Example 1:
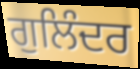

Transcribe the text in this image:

ਗੁਲਿੰਦਰ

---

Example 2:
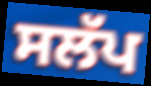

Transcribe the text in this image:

ਸਲੱਪ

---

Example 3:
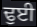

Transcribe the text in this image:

ਢੁਈ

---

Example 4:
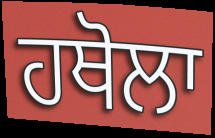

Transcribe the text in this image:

ਹਥੋਲਾ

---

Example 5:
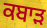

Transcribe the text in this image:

ਕਬਾੜ